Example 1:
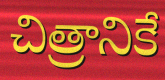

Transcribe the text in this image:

చిత్రానికే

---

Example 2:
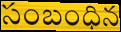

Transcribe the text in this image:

సంబంధిన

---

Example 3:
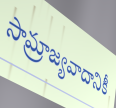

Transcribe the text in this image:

సామ్రాజ్యవాదానికీ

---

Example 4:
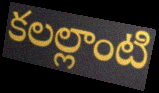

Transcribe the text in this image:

కలల్లాంటి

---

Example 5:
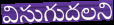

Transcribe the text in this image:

విసుగుదలని